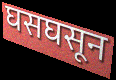
घसघसून